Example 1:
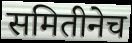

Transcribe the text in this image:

समितीनेच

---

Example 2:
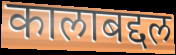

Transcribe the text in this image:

कालाबद्दल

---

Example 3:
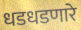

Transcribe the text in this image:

धडधडणारे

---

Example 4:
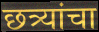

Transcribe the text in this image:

छत्र्यांचा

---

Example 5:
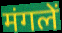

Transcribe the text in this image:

मंगलें